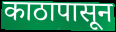
काठापासून